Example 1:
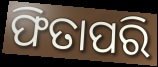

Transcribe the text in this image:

ଫିତାପରି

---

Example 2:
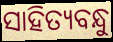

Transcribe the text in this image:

ସାହିତ୍ୟବନ୍ଧୁ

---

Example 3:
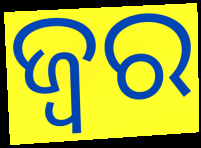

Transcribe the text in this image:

ଜ୍ଵର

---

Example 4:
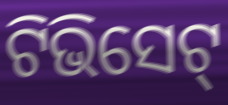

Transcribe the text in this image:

ଟିଭିସେଟ୍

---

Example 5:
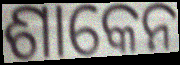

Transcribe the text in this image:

ଶାକେନ